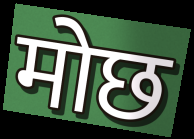
मोछ